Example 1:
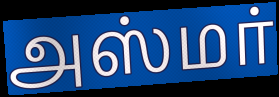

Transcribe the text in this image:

அஸ்மர்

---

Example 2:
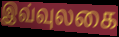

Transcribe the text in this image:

இவ்வுலகை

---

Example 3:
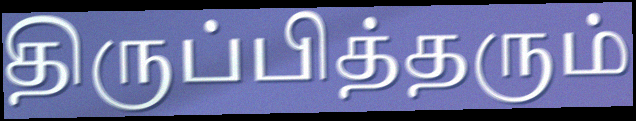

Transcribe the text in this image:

திருப்பித்தரும்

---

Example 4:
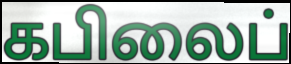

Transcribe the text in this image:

கபிலைப்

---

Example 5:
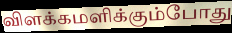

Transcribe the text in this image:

விளக்கமளிக்கும்போது